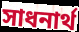
সাধনার্থ